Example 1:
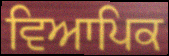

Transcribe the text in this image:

ਵਿਆਪਿਕ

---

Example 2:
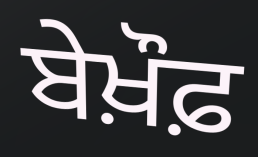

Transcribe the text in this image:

ਬੇਖ਼ੌਫ਼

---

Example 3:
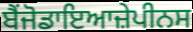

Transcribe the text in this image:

ਬੈਂਜੋਡਾਇਆਜ਼ੇਪੀਨਸ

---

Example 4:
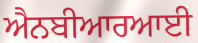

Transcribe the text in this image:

ਐਨਬੀਆਰਆਈ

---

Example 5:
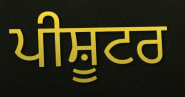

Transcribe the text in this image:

ਪੀਸ਼ੂਟਰ